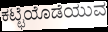
ಕಟ್ಟೆಯೊಡೆಯುವ